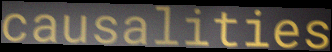
causalities